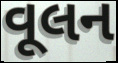
વૂલન